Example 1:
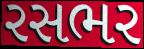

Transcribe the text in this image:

રસભર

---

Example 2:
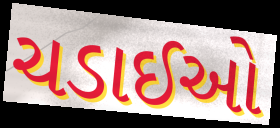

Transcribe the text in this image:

ચડાઈઓ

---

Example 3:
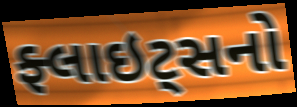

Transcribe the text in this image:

ફ્લાઇટ્સનો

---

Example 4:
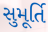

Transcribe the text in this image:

સુમૂર્તિ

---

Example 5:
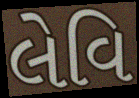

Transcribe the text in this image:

લેવિ